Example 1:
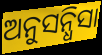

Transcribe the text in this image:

ଅନୁସନ୍ଧିସା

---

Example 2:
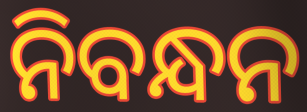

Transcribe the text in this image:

ନିବନ୍ଧନ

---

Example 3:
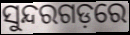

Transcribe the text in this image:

ସୁନ୍ଦରଗଡ଼ରେ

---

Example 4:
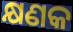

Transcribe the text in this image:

କ୍ଷଣକ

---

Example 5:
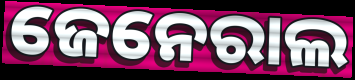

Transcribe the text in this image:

ଜେନେରାଲ